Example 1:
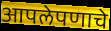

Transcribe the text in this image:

आपलेपणाचे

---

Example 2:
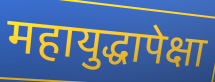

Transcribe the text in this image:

महायुद्धापेक्षा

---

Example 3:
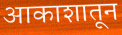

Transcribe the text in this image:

आकाशातून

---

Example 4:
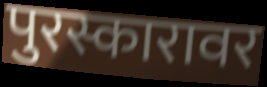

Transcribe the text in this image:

पुरस्कारावर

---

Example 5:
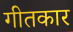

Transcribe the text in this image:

गीतकार